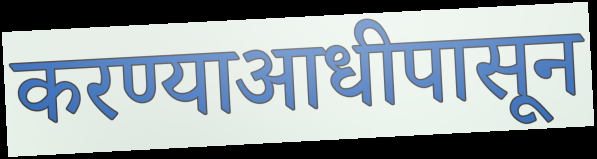
करण्याआधीपासून